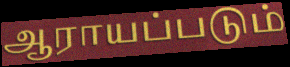
ஆராயப்படும்